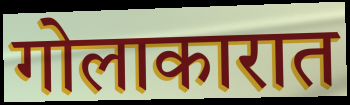
गोलाकारात